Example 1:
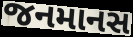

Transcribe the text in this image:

જનમાનસ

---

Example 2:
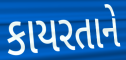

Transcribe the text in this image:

કાયરતાને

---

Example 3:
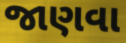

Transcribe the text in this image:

જાણવા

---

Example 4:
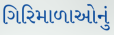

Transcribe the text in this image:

ગિરિમાળાઓનું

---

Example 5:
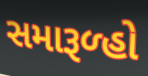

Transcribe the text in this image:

સમારૂળ્હો